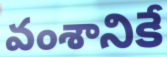
వంశానికే